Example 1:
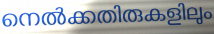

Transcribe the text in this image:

നെൽക്കതിരുകളിലും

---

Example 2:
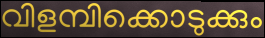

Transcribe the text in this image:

വിളമ്പിക്കൊടുക്കും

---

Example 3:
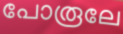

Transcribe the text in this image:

പോരൂലേ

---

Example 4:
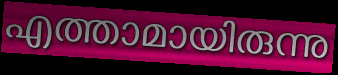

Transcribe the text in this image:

എത്താമായിരുന്നു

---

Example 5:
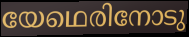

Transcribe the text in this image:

യേഥെരിനോടു